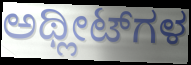
ಅಥ್ಲೀಟ್‌ಗಳ